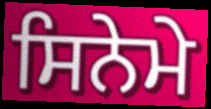
ਸਿਨੇਮੇ